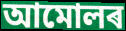
আমোলৰ